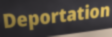
Deportation